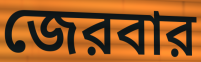
জেরবার